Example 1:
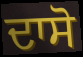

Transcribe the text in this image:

ਦਾਸੋ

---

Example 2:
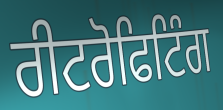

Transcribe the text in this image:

ਰੀਟਰੋਫਿਟਿੰਗ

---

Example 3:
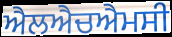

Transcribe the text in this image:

ਐਲਐਚਐਮਸੀ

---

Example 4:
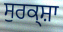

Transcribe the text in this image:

ਸੁਰਕ੍ਸ਼ਾ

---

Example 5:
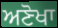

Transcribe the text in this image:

ਅਣੋਖਾ